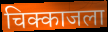
चिक्काजला